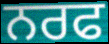
ਨਰਫ